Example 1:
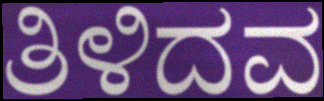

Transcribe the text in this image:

ತಿಳಿದವ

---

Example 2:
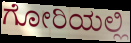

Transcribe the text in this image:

ಗೋರಿಯಲ್ಲಿ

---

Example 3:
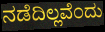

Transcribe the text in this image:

ನಡೆದಿಲ್ಲವೆಂದು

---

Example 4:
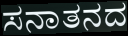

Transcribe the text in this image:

ಸನಾತನದ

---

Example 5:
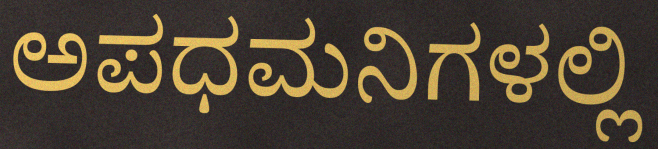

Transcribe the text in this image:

ಅಪಧಮನಿಗಳಲ್ಲಿ